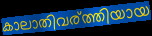
കാലാതിവര്ത്തിയായ